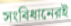
সংবিধানেরই